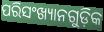
ପରିସଂଖ୍ୟାନଗୁଡ଼ିକ